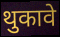
थुकावे